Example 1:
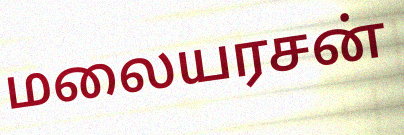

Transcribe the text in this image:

மலையரசன்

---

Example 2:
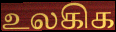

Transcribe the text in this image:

உலகிக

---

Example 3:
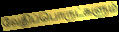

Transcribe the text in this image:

வேதிப்பொருட்களும்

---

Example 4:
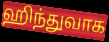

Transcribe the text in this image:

ஹிந்துவாக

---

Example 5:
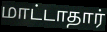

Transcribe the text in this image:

மாட்டாதார்